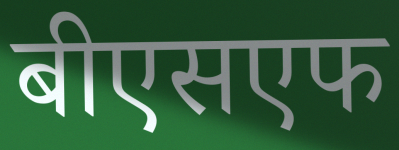
बीएसएफ